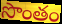
సొంతం